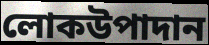
লোকউপাদান